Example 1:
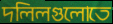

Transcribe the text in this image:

দলিলগুলোতে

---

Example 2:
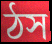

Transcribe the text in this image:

ঠস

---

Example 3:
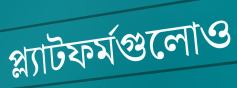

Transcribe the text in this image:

প্ল্যাটফর্মগুলোও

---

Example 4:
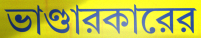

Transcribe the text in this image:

ভাণ্ডারকারের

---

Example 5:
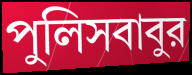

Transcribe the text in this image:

পুলিসবাবুর